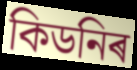
কিডনিৰ